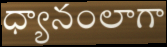
ధ్యానంలాగా